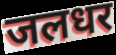
जलधर